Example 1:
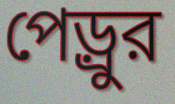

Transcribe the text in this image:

পেড়্রুর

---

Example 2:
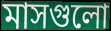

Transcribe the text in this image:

মাসগুলো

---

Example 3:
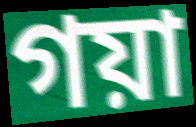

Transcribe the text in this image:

গয়া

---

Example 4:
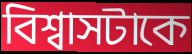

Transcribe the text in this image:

বিশ্বাসটাকে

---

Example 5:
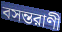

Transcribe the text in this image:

বসন্তরাণী